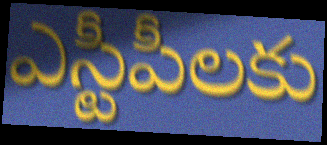
ఎస్టీపీలకు